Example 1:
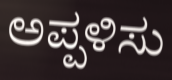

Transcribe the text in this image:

ಅಪ್ಪಳಿಸು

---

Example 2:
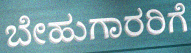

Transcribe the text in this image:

ಬೇಹುಗಾರರಿಗೆ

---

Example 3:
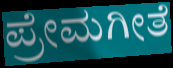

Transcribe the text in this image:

ಪ್ರೇಮಗೀತೆ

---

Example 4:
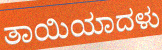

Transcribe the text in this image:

ತಾಯಿಯಾದಳು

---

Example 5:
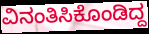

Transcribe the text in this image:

ವಿನಂತಿಸಿಕೊಂಡಿದ್ದ